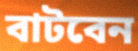
বাটবেন